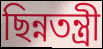
ছিন্নতন্ত্রী